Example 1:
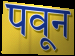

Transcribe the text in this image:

पवून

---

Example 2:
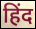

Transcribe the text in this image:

हिंद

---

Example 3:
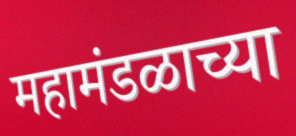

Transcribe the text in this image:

महामंडळाच्या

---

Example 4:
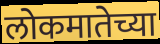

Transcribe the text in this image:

लोकमातेच्या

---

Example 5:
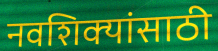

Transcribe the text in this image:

नवशिक्यांसाठी